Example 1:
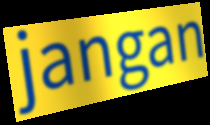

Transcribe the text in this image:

jangan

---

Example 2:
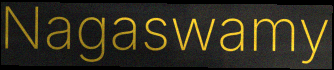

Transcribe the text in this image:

Nagaswamy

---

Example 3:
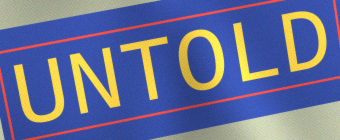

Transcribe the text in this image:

UNTOLD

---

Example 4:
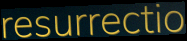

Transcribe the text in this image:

resurrectio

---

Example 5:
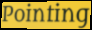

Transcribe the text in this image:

Pointing